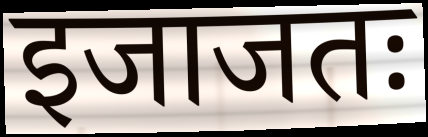
इजाजतः